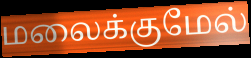
மலைக்குமேல்